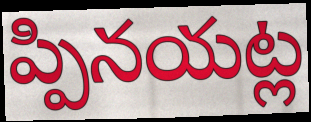
ప్పినయట్ల